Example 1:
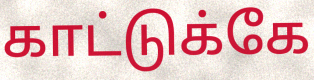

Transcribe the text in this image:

காட்டுக்கே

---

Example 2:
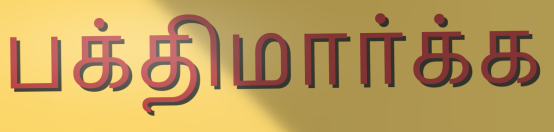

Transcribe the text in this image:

பக்திமார்க்க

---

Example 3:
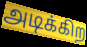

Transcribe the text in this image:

அடிக்கிற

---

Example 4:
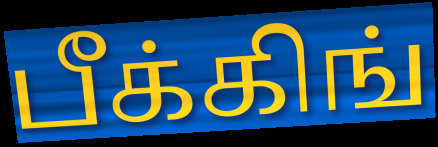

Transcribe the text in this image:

பீக்கிங்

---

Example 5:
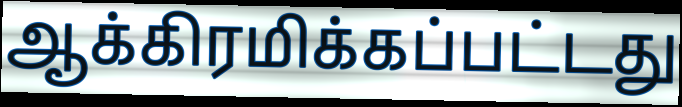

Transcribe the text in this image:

ஆக்கிரமிக்கப்பட்டது